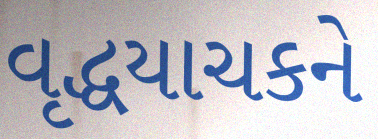
વૃદ્ધયાચકને